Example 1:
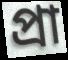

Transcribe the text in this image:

প্ৰা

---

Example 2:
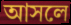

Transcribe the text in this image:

আসলে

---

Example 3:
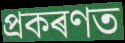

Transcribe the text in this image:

প্ৰকৰণত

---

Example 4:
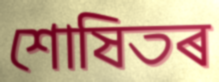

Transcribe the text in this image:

শোষিতৰ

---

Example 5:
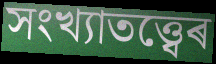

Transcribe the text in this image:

সংখ্যাতত্ত্বেৰ